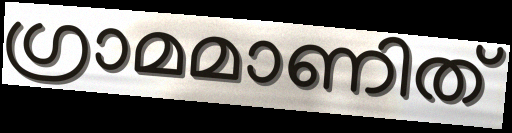
ഗ്രാമമാണിത്